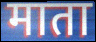
माता